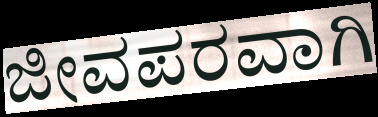
ಜೀವಪರವಾಗಿ